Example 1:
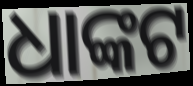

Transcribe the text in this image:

ଧାଙ୍କଟ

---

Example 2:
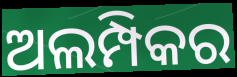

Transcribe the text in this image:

ଅଲମ୍ପିକର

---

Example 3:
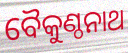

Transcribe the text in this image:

ବୈକୁଣ୍ଠନାଥ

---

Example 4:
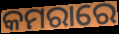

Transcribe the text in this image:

କମରାରେ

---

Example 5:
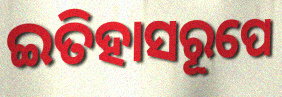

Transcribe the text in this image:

ଇତିହାସରୂପେ